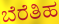
ಬೆರೆತಿಹ